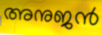
അനുജൻ